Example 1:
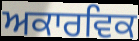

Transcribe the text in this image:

ਅਕਾਰਵਿਕ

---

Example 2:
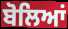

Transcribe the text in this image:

ਬੋਲਿਆਂ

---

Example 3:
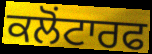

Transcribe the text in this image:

ਕਲੋਂਟਾਰਫ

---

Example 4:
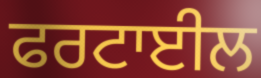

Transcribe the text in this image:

ਫਰਟਾਈਲ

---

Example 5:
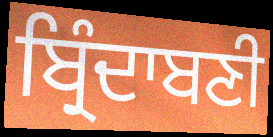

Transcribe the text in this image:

ਬ੍ਰਿੰਦਾਬਣੀ